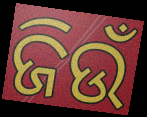
ଜିଉଁ